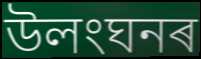
উলংঘনৰ